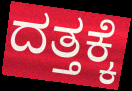
ದತ್ತಕ್ಕೆ